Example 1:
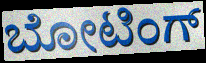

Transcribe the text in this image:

ಬೋಟಿಂಗ್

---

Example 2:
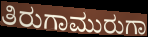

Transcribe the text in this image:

ತಿರುಗಾಮುರುಗಾ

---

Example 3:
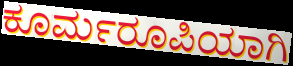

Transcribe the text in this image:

ಕೂರ್ಮರೂಪಿಯಾಗಿ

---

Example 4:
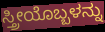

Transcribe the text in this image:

ಸ್ತ್ರೀಯೊಬ್ಬಳನ್ನು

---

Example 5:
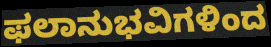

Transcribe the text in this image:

ಫಲಾನುಭವಿಗಳಿಂದ